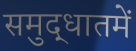
समुद्धातमें